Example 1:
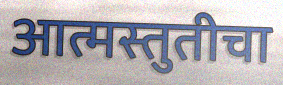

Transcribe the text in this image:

आत्मस्तुतीचा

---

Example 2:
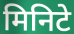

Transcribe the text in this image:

मिनिटे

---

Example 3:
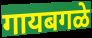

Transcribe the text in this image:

गायबगळे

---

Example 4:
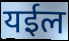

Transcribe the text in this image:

यईल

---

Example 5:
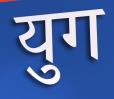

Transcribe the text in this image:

युग